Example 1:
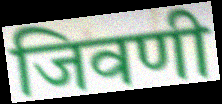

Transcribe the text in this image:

जिवणी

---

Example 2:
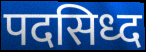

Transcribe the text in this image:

पदसिध्द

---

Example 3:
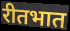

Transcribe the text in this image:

रीतभात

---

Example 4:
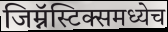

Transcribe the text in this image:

जिम्नॅस्टिक्समध्येच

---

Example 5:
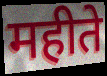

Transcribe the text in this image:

महीते